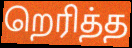
றெரித்த